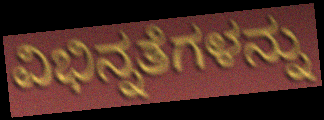
ವಿಭಿನ್ನತೆಗಳನ್ನು